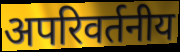
अपरिवर्तनीय